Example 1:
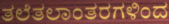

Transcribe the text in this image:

ತಲೆತಲಾಂತರಗಳಿಂದ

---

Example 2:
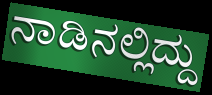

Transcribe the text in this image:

ನಾಡಿನಲ್ಲಿದ್ದು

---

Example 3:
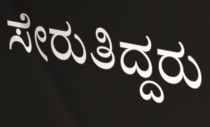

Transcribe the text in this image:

ಸೇರುತಿದ್ದರು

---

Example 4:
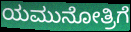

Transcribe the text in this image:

ಯಮುನೋತ್ರಿಗೆ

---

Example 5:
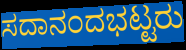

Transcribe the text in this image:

ಸದಾನಂದಭಟ್ಟರು